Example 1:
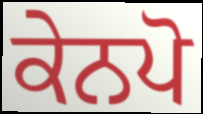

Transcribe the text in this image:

ਕੇਨਪੋ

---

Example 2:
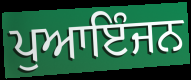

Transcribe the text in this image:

ਪੁਆਇੰਜਨ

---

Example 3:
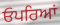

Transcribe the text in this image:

ਓਪਰਿਆਂ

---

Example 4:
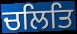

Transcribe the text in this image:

ਚਲਿਤਿ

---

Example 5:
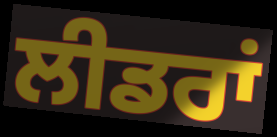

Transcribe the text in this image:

ਲੀਡਰਾਂ